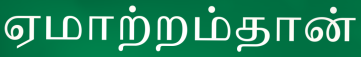
ஏமாற்றம்தான்